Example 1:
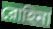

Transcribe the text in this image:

রোহিনা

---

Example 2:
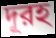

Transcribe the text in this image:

দূরহ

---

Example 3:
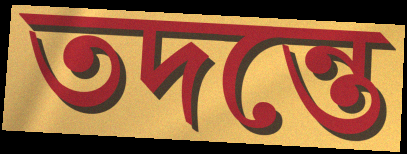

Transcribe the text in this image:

তদন্তে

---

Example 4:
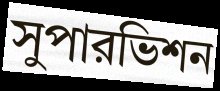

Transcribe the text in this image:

সুপারভিশন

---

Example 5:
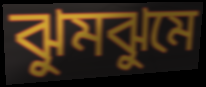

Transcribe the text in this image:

ঝুমঝুমে